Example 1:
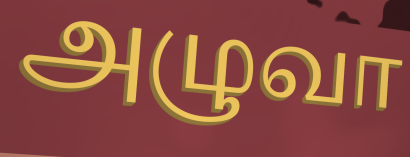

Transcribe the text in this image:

அழுவா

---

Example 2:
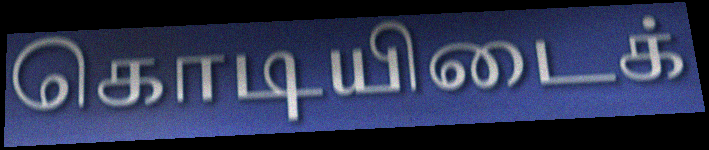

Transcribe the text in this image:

கொடியிடைக்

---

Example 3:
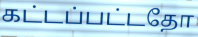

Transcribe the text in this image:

கட்டப்பட்டதோ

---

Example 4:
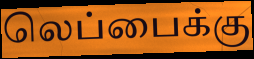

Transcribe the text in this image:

லெப்பைக்கு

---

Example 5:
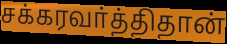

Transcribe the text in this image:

சக்கரவர்த்திதான்